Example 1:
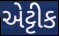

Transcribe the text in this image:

એટ્ટીક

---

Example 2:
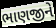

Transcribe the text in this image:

ભાણજીને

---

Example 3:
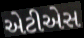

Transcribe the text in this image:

એટીએસ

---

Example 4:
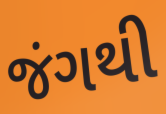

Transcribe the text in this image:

જંગથી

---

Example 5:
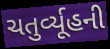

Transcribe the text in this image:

ચતુર્વ્યૂહની